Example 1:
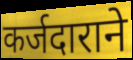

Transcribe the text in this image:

कर्जदाराने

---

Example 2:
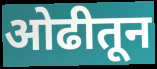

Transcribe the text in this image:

ओढीतून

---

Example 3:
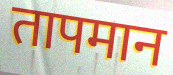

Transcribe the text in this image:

तापमान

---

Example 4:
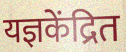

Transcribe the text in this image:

यज्ञकेंद्रित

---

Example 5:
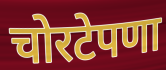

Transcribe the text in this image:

चोरटेपणा